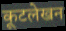
कूटलेखन